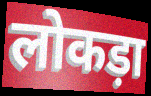
लोकड़ा